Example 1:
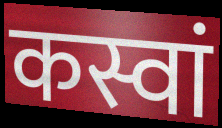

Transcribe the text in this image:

कस्वां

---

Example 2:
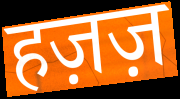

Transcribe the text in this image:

हज़ज़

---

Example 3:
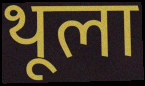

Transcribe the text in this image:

थूला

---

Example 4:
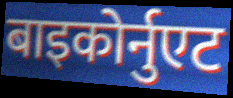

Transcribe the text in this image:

बाइकोर्नुएट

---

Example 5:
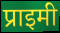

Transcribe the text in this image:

प्राइमी